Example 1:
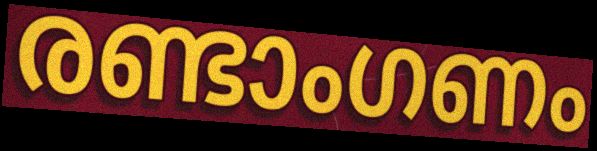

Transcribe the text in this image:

രണ്ടാംഗണം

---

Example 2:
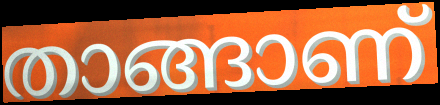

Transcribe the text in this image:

താങ്ങാണ്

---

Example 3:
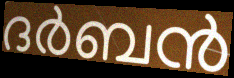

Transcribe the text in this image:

ദർബൻ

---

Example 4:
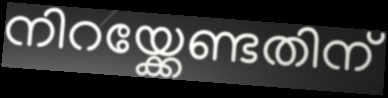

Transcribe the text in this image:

നിറയ്ക്കേണ്ടതിന്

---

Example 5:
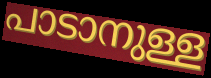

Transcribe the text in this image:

പാടാനുള്ള